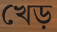
খেড়